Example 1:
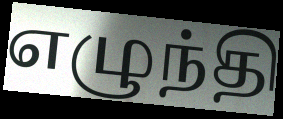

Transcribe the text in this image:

எழுந்தி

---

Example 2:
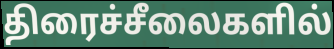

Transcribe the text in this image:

திரைச்சீலைகளில்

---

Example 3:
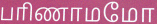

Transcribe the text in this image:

பரிணாமமோ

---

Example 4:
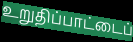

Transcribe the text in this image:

உறுதிப்பாட்டைப்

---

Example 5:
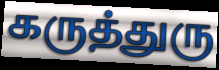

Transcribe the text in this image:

கருத்துரு